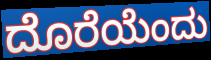
ದೊರೆಯೆಂದು